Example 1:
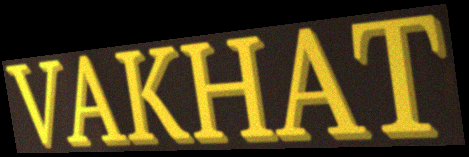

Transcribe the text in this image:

VAKHAT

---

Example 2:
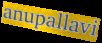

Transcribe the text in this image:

anupallavi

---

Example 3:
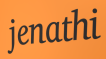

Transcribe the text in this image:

jenathi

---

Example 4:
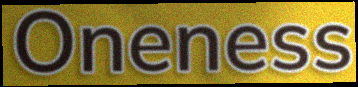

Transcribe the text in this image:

Oneness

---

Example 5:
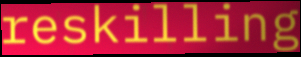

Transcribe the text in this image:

reskilling